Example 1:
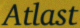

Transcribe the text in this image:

Atlast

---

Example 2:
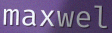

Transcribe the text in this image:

maxwel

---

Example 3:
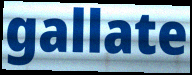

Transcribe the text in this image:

gallate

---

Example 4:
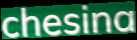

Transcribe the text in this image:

chesina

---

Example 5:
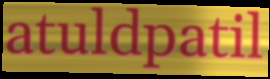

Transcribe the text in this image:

atuldpatil